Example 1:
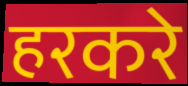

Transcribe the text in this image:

हरकरे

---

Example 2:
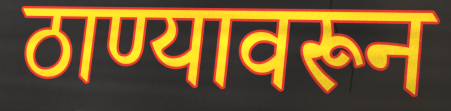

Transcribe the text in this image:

ठाण्यावरून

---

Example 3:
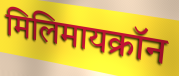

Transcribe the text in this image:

मिलिमायक्रॉन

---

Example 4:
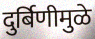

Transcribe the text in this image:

दुर्बिणीमुळे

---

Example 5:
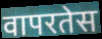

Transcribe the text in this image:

वापरतेस